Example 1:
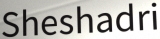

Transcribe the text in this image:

Sheshadri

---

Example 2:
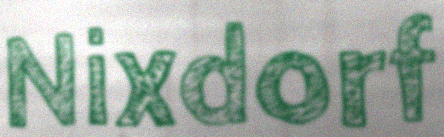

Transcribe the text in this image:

Nixdorf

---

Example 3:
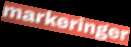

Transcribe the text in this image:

markeringer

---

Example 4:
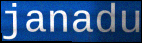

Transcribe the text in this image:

janadu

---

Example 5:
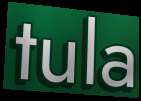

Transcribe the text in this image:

tula